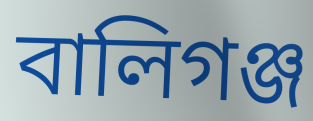
বালিগঞ্জ